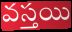
వస్తయి